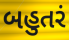
બહુતરં